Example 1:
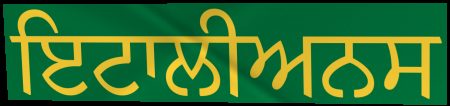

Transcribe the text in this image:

ਇਟਾਲੀਅਨਸ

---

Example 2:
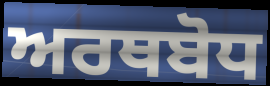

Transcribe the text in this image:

ਅਰਥਬੋਧ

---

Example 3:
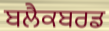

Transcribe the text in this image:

ਬਲੈਕਬਰਡ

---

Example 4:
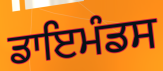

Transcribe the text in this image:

ਡਾਇਮੰਡਸ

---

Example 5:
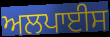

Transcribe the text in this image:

ਅਲਪਾਈਸ